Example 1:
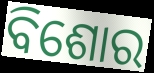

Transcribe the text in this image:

ବିଶୋର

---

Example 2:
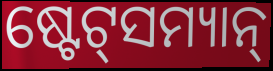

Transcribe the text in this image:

ଷ୍ଟେଟ୍‌ସମ୍ୟାନ୍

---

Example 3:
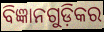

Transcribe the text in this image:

ବିଜ୍ଞାନଗୁଡ଼ିକର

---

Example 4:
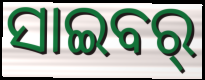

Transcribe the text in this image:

ସାଇବର୍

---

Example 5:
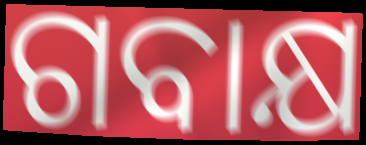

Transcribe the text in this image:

ଗବାକ୍ଷ